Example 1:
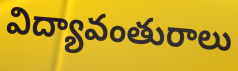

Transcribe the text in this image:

విద్యావంతురాలు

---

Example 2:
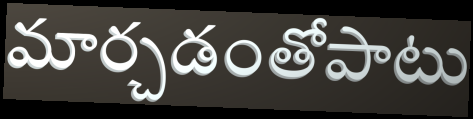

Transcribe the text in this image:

మార్చడంతోపాటు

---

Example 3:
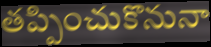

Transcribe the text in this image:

తప్పించుకొనునా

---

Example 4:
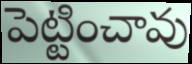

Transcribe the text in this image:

పెట్టించావు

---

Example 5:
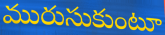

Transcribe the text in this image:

మురుసుకుంటూ